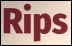
Rips